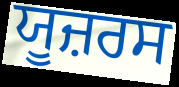
ਯੂਜ਼ਰਸ